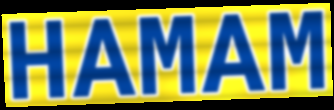
HAMAM